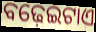
ବଢ଼େଇଟାଏ